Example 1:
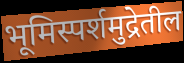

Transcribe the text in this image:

भूमिस्पर्शमुद्रेतील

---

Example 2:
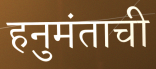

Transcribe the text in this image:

हनुमंताची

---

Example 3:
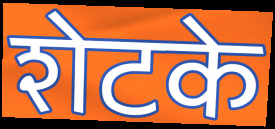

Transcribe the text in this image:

शेटके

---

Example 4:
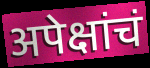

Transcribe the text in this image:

अपेक्षांचं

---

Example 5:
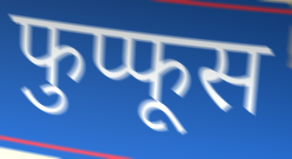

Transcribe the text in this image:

फुप्फूस